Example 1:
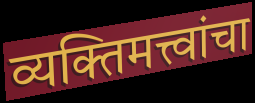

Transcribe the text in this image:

व्यक्तिमत्त्वांचा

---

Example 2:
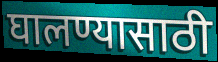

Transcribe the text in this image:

घालण्यासाठी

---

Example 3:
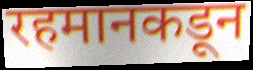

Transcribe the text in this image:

रहमानकडून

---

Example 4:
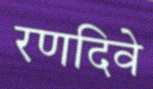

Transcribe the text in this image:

रणदिवे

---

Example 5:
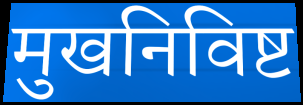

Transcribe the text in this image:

मुखनिविष्ट